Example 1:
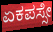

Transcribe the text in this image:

ಏಕಪಸ್ಸೇ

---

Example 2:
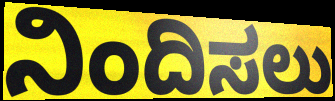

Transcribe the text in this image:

ನಿಂದಿಸಲು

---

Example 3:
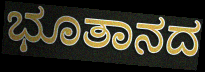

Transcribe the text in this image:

ಭೂತಾನದ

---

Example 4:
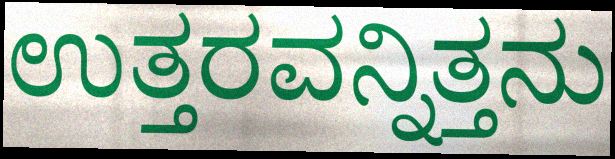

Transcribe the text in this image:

ಉತ್ತರವನ್ನಿತ್ತನು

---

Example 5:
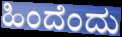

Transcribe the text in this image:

ಹಿಂದೆಂದು